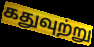
கதுவுற்று